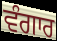
ਵੰਗਾਰ